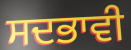
ਸਦਭਾਵੀ